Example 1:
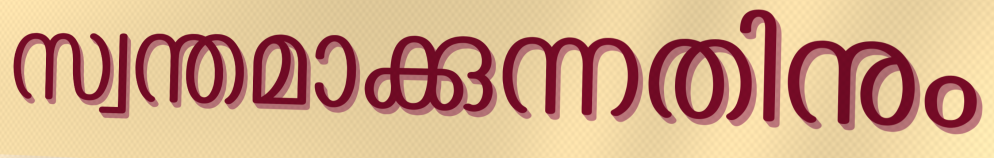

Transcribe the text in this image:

സ്വന്തമാക്കുന്നതിനും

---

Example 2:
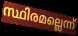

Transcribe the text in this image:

സ്ഥിരമല്ലെന്ന്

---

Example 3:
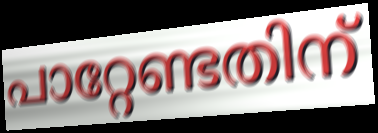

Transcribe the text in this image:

പാറ്റേണ്ടതിന്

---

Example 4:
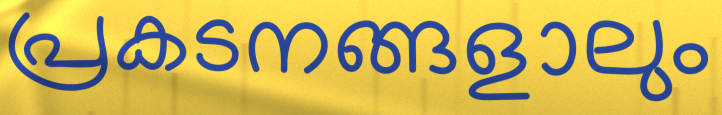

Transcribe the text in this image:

പ്രകടനങ്ങളാലും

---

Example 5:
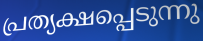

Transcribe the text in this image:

പ്രത്യക്ഷപ്പെടുന്നു